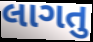
લાગતુ